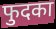
फुदका